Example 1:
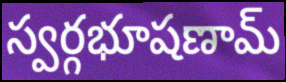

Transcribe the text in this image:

స్వర్గభూషణామ్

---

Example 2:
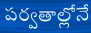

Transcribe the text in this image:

పర్వతాల్లోనే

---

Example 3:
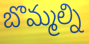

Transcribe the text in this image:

బొమ్మల్ని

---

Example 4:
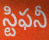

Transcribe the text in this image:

స్టిఫనీ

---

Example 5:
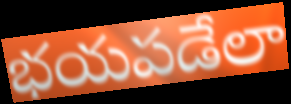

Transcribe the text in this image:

భయపడేలా